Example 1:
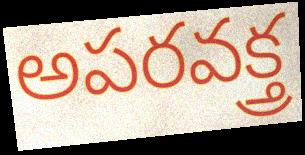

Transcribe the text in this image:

అపరవక్త్ర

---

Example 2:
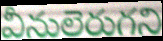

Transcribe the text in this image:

వీనులెరుగని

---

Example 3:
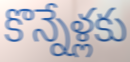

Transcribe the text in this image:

కొన్నేళ్లకు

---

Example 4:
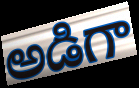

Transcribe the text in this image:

అడిగా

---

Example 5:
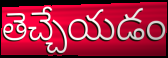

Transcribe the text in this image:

తెచ్చేయడం